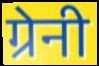
ग्रेनी